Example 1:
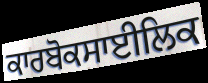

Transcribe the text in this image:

ਕਾਰਬੋਕਸਾਈਲਿਕ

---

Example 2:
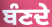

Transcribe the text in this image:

ਬੰਣਦੇ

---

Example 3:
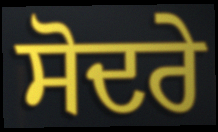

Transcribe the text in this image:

ਸੋਦਰੇ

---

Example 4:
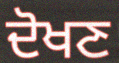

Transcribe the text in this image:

ਦੋਖਣ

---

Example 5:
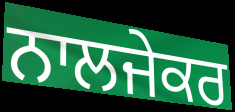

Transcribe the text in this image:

ਨਾਲਜੇਕਰ